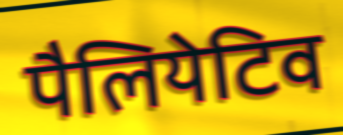
पैलियेटिव